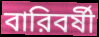
বারিবর্ষী